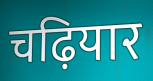
चढ़ियार